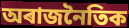
অৰাজনৈতিক